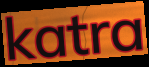
katra